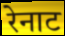
रेनाट